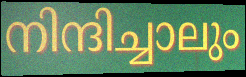
നിന്ദിച്ചാലും